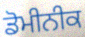
ਡੋਮੀਨੀਕ